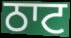
ਠਾਟ